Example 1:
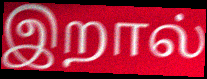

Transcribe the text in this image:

இறால்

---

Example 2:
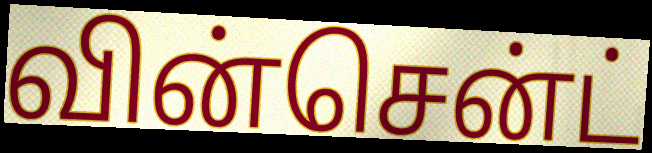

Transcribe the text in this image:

வின்சென்ட்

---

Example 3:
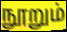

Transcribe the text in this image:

நூறும்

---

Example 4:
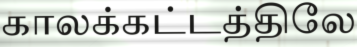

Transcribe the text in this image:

காலக்கட்டத்திலே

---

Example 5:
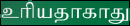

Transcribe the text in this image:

உரியதாகாது